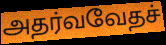
அதர்வவேதச்